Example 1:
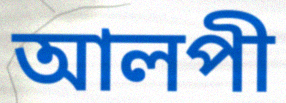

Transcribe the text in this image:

আলপী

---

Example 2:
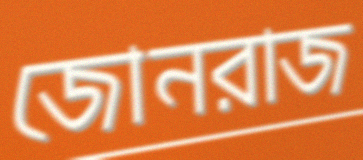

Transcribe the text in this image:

জোনরাজ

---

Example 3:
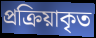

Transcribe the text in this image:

প্রক্রিয়াকৃত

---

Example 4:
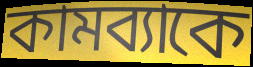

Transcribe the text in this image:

কামব্যাকে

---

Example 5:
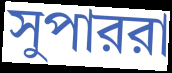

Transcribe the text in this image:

সুপাররা